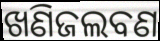
ଖଣିଜଲବଣ